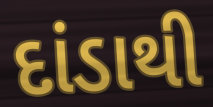
દાંડાથી